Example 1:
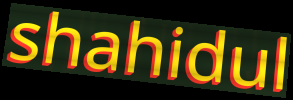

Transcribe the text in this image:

shahidul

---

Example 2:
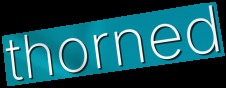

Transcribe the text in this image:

thorned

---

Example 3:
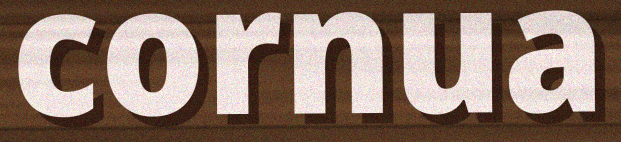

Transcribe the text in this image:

cornua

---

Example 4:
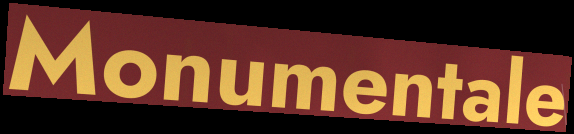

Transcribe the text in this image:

Monumentale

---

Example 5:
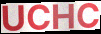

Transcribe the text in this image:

UCHC